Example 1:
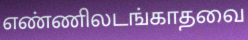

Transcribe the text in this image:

எண்ணிலடங்காதவை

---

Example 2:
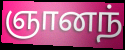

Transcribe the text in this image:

ஞானந்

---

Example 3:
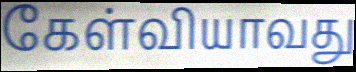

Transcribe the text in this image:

கேள்வியாவது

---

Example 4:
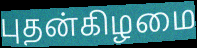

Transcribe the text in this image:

புதன்கிழமை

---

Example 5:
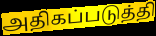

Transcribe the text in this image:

அதிகப்படுத்தி